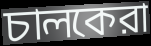
চালকেরা